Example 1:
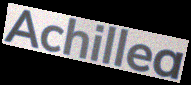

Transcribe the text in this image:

Achillea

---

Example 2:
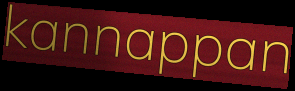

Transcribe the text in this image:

kannappan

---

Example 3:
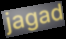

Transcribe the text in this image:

jagad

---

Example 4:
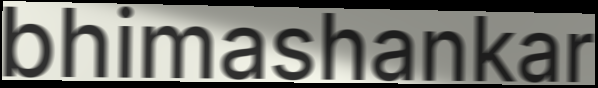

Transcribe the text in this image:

bhimashankar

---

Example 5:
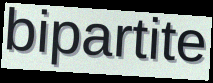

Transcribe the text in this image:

bipartite